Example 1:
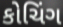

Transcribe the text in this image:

કોચિંગ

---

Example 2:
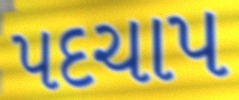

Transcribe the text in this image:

પદચાપ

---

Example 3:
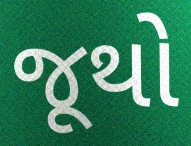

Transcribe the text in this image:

જૂથો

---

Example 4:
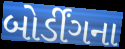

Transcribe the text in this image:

બોર્ડીંગના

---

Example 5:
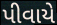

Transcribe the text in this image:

પીવાયે